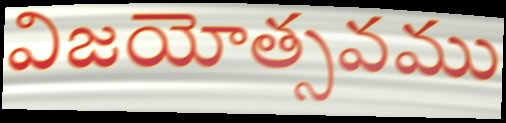
విజయోత్సవము